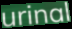
urinal